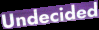
Undecided